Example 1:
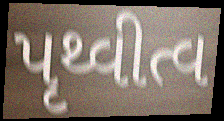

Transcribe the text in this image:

પૃથ્વીત્વ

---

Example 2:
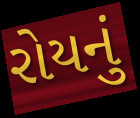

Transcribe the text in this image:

રોયનું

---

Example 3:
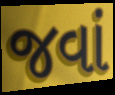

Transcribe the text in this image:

જવાં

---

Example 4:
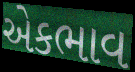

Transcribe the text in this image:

એકભાવ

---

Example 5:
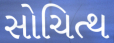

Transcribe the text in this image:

સોચિત્થ